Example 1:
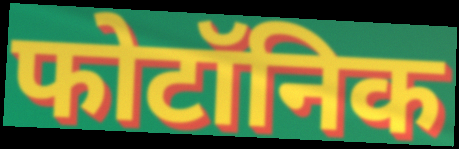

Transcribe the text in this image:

फोटॉनिक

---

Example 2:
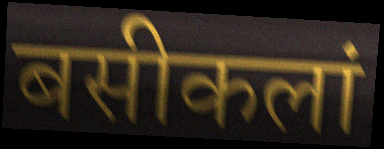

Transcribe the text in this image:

बसीकलां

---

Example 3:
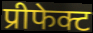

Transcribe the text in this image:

प्रीफेक्ट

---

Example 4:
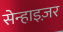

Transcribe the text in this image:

सेन्हाइज़र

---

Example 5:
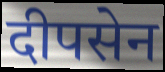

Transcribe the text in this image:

दीपसेन